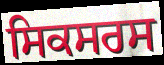
ਸਿਕਸਰਸ